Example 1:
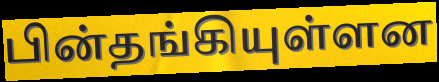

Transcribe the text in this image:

பின்தங்கியுள்ளன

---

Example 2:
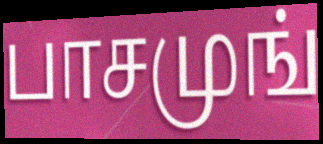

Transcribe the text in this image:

பாசமுங்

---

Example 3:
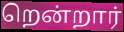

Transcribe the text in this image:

றென்றார்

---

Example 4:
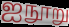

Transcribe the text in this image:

ஐநூறு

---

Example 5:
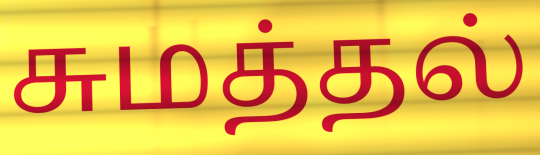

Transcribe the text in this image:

சுமத்தல்